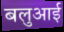
बलुआई